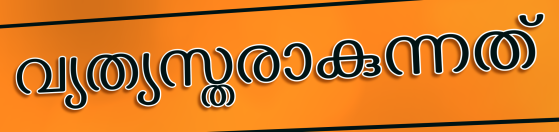
വ്യത്യസ്തരാകുന്നത്